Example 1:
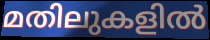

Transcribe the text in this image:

മതിലുകളിൽ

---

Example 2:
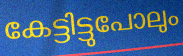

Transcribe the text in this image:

കേട്ടിട്ടുപോലും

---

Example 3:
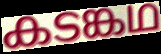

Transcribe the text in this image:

കടങ്കഥ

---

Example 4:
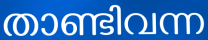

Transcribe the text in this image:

താണ്ടിവന്ന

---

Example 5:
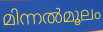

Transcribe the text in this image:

മിന്നൽമൂലം